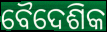
ବୈଦେଶିକ